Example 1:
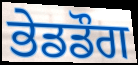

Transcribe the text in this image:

ਭੇਡਡੌਗ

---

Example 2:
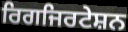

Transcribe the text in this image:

ਰਿਗਜਿਰਟੇਸ਼ਨ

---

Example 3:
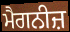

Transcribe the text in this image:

ਮੈਗਨੀਜ਼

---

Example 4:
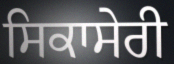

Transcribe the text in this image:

ਸਿਕਾਸੇਰੀ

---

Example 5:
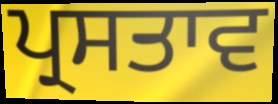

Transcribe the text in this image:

ਪ੍ਰਸਤਾਵ